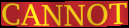
CANNOT